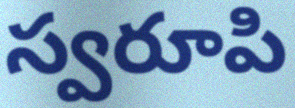
స్వరూపి